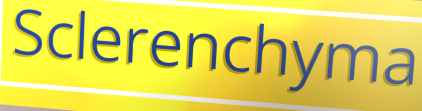
Sclerenchyma